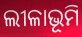
ଲୀଳାଭୂମି